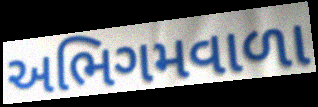
અભિગમવાળા